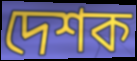
দেশক